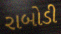
રાબોડી